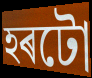
হৰটো